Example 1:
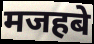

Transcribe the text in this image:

मजहबे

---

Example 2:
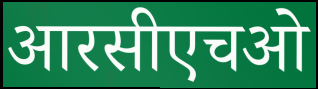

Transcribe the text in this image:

आरसीएचओ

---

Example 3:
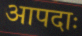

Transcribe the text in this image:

आपदाः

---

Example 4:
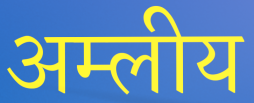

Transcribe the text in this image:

अम्लीय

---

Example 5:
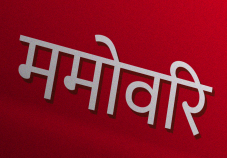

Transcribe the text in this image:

ममोवरि